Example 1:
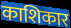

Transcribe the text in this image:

काशिकार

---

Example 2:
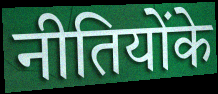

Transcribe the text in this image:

नीतियोंके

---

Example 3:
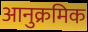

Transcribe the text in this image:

आनुक्रमिक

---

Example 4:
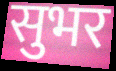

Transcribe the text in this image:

सुभर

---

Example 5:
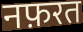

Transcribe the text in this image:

नफ़रत